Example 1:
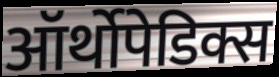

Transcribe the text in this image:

ऑर्थोपेडिक्स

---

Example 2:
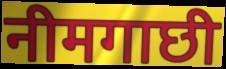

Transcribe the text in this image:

नीमगाछी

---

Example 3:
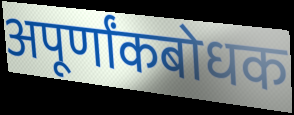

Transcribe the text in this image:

अपूर्णांकबोधक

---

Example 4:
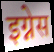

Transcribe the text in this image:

इग्नेस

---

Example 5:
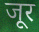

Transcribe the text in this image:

जूर